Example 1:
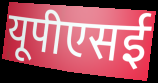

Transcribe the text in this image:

यूपीएसई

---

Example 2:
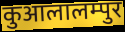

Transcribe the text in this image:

कुआलालम्पुर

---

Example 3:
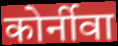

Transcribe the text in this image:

कोर्नीवा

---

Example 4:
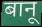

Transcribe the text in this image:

बानू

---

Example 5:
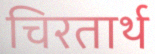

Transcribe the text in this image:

चिरतार्थ